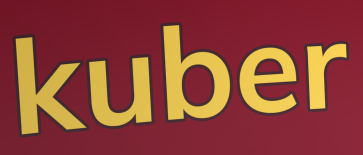
kuber